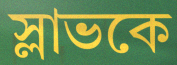
স্লাভকে